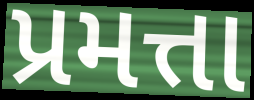
પ્રમત્તા